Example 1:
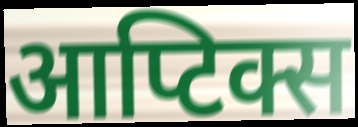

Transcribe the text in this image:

आप्टिक्स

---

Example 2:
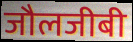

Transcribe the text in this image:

जौलजीबी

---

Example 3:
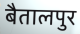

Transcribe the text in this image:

बैतालपुर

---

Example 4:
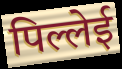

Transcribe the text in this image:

पिल्लेई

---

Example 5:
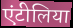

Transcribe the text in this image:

एंटीलिया